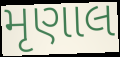
મૃણાલ